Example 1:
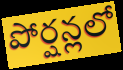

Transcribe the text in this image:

పోర్షన్లలో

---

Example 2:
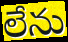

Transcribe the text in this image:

లేను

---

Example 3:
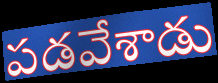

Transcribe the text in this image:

పడవేశాడు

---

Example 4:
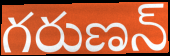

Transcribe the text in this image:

గరుణన్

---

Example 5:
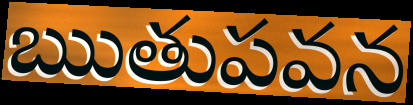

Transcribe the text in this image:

ఋతుపవన